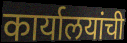
कार्यालयांची